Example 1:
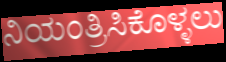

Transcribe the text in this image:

ನಿಯಂತ್ರಿಸಿಕೊಳ್ಳಲು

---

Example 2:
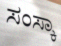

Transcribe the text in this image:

ಸಂಸ್ಕಾ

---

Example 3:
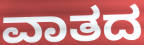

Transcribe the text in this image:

ವಾತದ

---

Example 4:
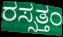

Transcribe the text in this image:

ರಸ್ಸತ್ತಂ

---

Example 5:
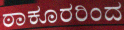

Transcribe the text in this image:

ಠಾಕೂರರಿಂದ